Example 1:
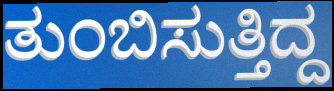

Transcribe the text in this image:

ತುಂಬಿಸುತ್ತಿದ್ದ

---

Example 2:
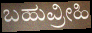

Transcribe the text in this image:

ಬಹುವ್ರೀಹಿ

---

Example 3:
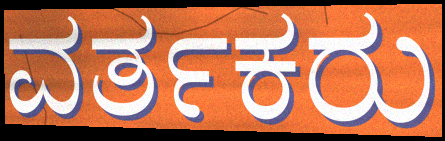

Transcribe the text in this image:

ವರ್ತಕರು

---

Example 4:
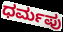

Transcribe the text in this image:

ಧರ್ಮಪು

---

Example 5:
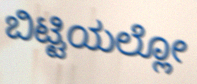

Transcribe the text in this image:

ಬಿಟ್ಟಿಯಲ್ಲೋ